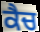
ਕੈਚ